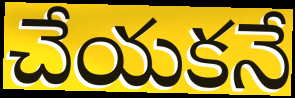
చేయకనే